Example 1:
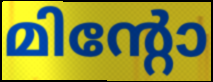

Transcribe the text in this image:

മിന്റോ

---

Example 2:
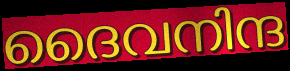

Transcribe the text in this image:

ദൈവനിന്ദ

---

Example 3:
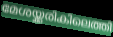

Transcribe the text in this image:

മേശയ്ക്കരികിലെത്തി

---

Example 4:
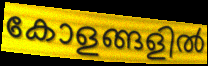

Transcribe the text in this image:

കോളങ്ങളിൽ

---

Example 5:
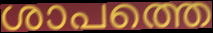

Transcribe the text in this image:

ശാപത്തെ